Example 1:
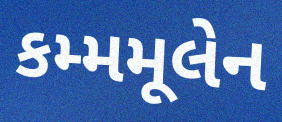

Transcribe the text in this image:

કમ્મમૂલેન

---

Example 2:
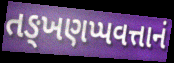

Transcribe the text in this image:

તઙ્ખણપ્પવત્તાનં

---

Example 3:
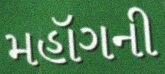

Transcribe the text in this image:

મહૉગની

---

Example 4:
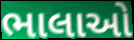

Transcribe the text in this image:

ભાલાઓ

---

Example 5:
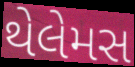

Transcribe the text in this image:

થેલેમસ